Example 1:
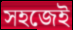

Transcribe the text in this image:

সহজেই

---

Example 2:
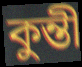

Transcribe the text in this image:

কুন্তী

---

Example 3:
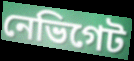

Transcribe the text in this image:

নেভিগেট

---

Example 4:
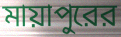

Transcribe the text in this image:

মায়াপুরের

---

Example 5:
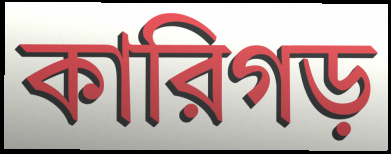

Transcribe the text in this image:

কারিগড়